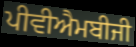
ਪੀਵੀਐਮਬੀਜੀ